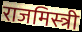
राजमिस्त्री